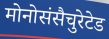
मोनोसंसैचुरेटेड